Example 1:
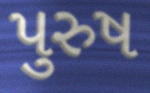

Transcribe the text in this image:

પુરુષ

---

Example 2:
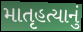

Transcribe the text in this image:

માતૃહત્યાનું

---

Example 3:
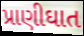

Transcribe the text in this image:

પ્રાણીઘાત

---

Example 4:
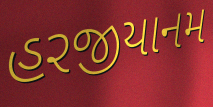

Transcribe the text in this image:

હરજીયાનમ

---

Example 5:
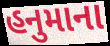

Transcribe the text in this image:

હનુમાના